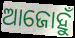
ଆଜୋହୁଁ